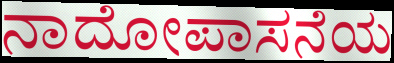
ನಾದೋಪಾಸನೆಯ